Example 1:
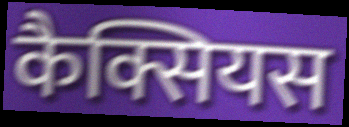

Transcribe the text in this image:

कैक्सियस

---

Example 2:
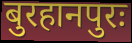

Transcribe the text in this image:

बुरहानपुरः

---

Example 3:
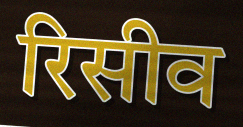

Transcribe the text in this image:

रिसीव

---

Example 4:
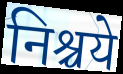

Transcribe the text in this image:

निश्चये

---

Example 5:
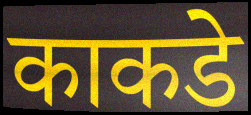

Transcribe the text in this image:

काकडे